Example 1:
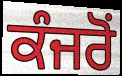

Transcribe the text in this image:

ਕੰਜਰੋਂ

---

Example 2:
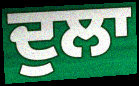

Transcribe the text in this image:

ਦੁਲਾ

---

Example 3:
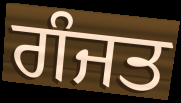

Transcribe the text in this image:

ਗੰਜਤ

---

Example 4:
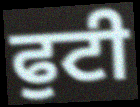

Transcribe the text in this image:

ਫੁਟੀ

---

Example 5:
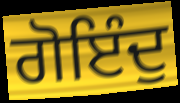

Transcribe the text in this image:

ਗੋਇੰਦੁ